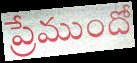
ప్రేముందో